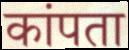
कांपता